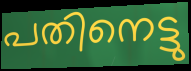
പതിനെട്ടു